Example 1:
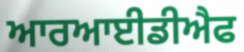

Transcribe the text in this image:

ਆਰਆਈਡੀਐਫ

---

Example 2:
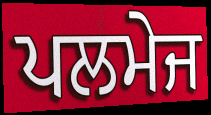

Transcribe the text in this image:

ਪਲਮੇਜ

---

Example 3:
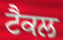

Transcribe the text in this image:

ਟੈਕਲ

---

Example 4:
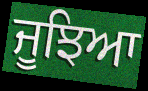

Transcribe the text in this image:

ਜੂਝਿਆ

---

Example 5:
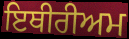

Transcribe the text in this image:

ਇਥੀਰੀਅਮ